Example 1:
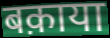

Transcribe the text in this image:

बक़ाया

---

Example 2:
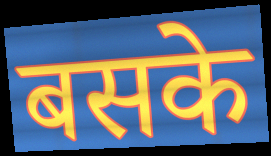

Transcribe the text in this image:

बसके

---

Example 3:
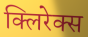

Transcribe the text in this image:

क्लिरेक्स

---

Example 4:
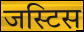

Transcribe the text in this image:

जस्‍टिस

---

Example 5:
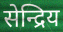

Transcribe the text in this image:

सेन्द्रिय